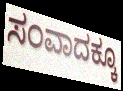
ಸಂವಾದಕ್ಕೂ